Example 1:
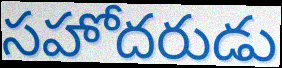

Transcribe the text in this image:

సహోదరుడు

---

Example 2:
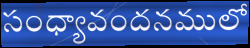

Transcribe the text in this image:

సంధ్యావందనములో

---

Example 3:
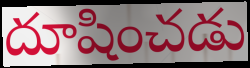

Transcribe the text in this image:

దూషించడు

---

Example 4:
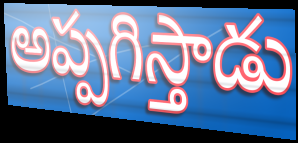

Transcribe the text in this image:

అప్పగిస్తాడు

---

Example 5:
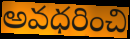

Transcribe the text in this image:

అవధరించి